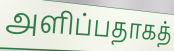
அளிப்பதாகத்